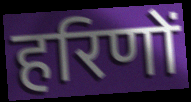
हरिणों